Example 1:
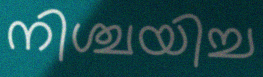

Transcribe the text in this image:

നിശ്ചയിച്ച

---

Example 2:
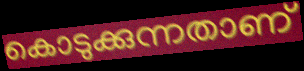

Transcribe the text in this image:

കൊടുക്കുന്നതാണ്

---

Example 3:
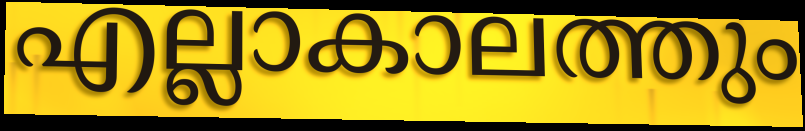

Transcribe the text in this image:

എല്ലാകാലത്തും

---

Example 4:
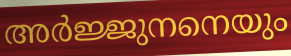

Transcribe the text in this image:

അർജ്ജുനനെയും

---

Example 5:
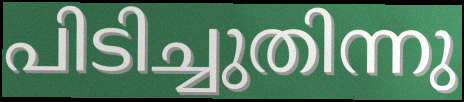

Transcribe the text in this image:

പിടിച്ചുതിന്നു